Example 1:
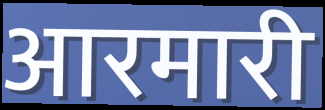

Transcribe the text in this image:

आरमारी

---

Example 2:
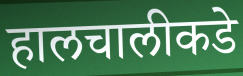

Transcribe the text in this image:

हालचालीकडे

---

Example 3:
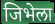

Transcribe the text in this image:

जिभेला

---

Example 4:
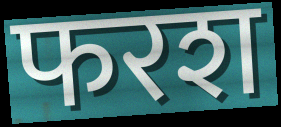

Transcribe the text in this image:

फरश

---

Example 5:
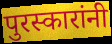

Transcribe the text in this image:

पुरस्कारांनी